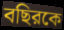
বছিরকে